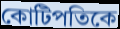
কোটিপতিকে